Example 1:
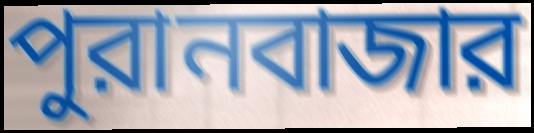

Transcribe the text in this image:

পুরানবাজার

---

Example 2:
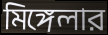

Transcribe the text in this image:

মিঙ্গেলার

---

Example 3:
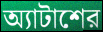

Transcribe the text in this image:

অ্যাটাশের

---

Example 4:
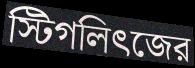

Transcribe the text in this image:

স্টিগলিৎজের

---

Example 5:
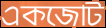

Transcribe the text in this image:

একজোট